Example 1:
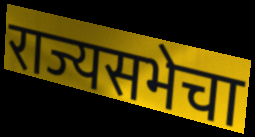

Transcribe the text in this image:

राज्यसभेचा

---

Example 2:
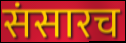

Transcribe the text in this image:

संसारच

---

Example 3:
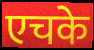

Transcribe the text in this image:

एचके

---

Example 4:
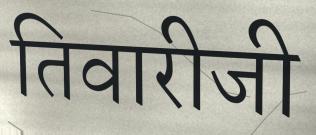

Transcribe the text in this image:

तिवारीजी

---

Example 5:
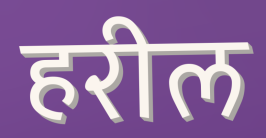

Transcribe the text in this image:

हरील